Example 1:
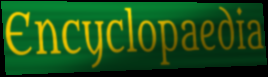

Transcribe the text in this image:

Encyclopaedia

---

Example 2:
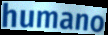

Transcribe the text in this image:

humano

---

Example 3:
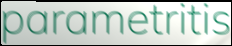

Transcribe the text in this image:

parametritis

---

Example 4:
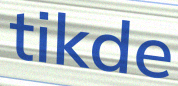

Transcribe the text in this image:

tikde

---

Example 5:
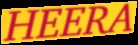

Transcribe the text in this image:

HEERA